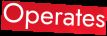
Operates